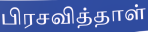
பிரசவித்தாள்